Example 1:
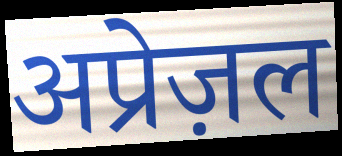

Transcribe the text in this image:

अप्रेज़ल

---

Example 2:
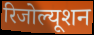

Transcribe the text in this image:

रिजोल्यूशन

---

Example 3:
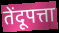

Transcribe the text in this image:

तेंदूपत्ता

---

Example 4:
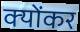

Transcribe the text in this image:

क्‍योंकर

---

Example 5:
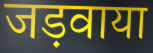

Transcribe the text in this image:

जड़वाया